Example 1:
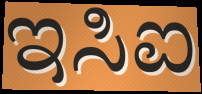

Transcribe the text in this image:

ಇಸಿಐ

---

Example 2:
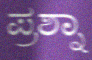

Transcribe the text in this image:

ಪ್ರಶ್ನಾ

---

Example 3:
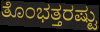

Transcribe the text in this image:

ತೊಂಭತ್ತರಷ್ಟು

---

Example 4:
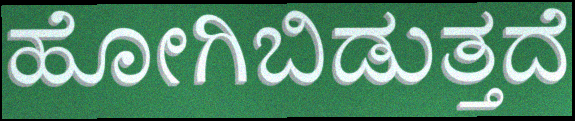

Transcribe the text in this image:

ಹೋಗಿಬಿಡುತ್ತದೆ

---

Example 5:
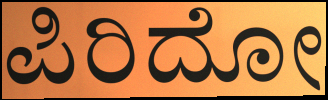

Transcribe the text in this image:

ಪಿರಿದೋ